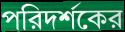
পরিদর্শকের